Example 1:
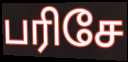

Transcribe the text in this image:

பரிசே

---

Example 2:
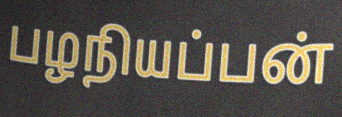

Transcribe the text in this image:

பழநியப்பன்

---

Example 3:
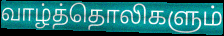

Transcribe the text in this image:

வாழ்த்தொலிகளும்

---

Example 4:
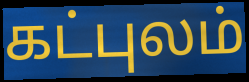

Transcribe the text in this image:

கட்புலம்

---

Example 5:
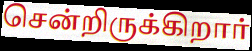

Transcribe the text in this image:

சென்றிருக்கிறார்